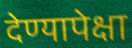
देण्यापेक्षा